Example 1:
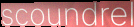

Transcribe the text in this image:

scoundrel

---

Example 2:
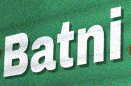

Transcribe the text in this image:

Batni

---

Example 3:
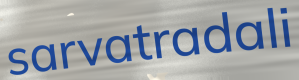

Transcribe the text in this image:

sarvatradali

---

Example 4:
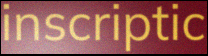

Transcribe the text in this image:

inscriptic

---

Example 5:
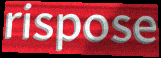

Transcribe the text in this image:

rispose